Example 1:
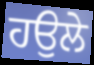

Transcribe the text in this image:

ਹਉਲੇ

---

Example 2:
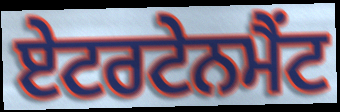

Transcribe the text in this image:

ਏਟਰਟੇਨਮੈਂਟ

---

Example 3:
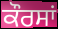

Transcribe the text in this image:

ਕੌਰਸਾਂ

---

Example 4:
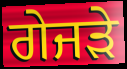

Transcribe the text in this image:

ਗੇਜੜੇ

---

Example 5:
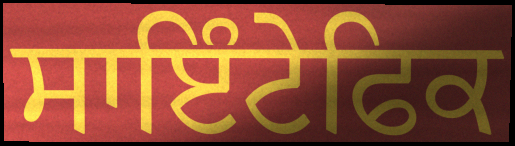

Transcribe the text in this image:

ਸਾਇੰਟੇਫਿਕ